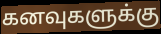
கனவுகளுக்கு